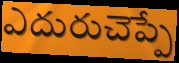
ఎదురుచెప్పే